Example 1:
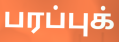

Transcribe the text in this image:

பரப்புக்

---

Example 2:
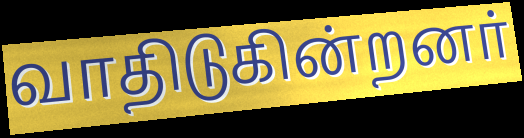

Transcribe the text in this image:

வாதிடுகின்றனர்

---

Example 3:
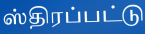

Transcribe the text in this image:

ஸ்திரப்பட்டு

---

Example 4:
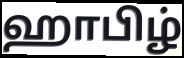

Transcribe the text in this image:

ஹாபிழ்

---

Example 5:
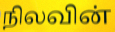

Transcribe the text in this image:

நிலவின்